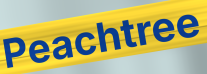
Peachtree